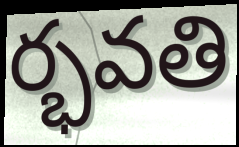
ర్భవతి